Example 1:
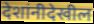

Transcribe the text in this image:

देशांनीदेखील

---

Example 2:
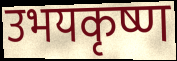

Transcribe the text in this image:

उभयकृष्ण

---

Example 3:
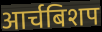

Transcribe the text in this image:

आर्चबिशप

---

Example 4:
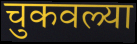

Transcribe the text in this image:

चुकवल्या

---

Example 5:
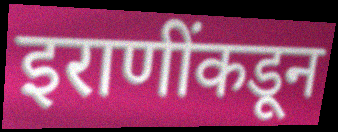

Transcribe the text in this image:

इराणींकडून